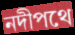
নদীপথে